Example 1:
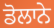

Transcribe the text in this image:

ਡੋਲਾਨੇ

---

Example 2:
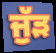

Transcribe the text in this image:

ਜੁੱੜ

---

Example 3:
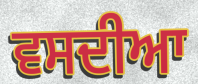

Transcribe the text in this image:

ਵਸਦੀਆ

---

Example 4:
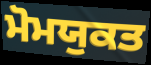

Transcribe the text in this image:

ਮੋਮਯੁਕਤ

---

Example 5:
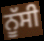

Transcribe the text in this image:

ਨੂੱਸੀ